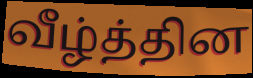
வீழ்த்தின